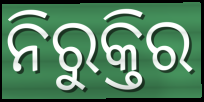
ନିରୁକ୍ତିର